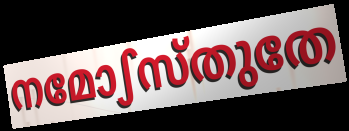
നമോഽസ്തുതേ